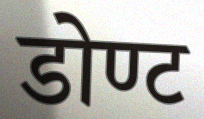
डोण्ट